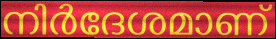
നിർദേശമാണ്